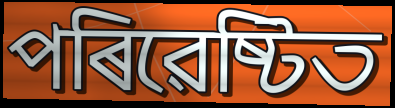
পৰিৱেষ্টিত